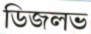
ডিজলভ